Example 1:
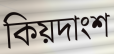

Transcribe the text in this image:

কিয়দাংশ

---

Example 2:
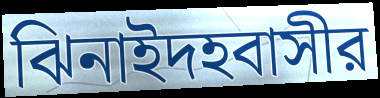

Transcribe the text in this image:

ঝিনাইদহবাসীর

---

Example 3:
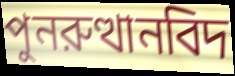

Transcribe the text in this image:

পুনরুত্থানবিদ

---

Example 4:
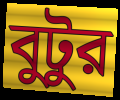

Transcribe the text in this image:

বুটুর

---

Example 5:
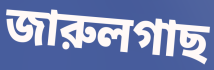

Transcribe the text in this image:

জারুলগাছ